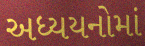
અધ્યયનોમાં